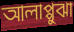
আলাপ্পুঝা